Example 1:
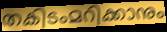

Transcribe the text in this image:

തകിടംമറിക്കാനും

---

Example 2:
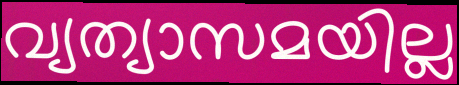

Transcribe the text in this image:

വ്യത്യാസമയില്ല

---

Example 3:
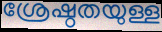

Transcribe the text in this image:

ശ്രേഷ്ഠതയുള്ള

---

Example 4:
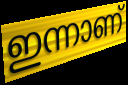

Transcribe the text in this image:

ഇന്നാണ്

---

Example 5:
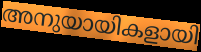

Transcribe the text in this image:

അനുയായികളായി